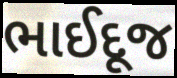
ભાઈદૂજ